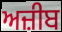
ਅਜ਼ੀਬ